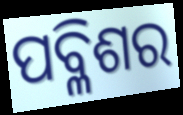
ପବ୍ଳିଶର